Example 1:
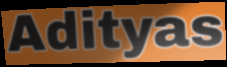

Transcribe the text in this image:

Adityas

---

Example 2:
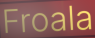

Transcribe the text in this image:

Froala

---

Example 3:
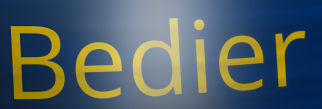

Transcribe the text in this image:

Bedier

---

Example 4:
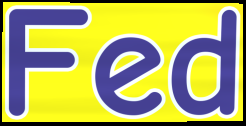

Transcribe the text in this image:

Fed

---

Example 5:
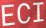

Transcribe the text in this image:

ECI